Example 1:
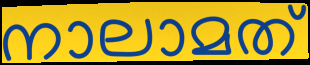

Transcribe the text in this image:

നാലാമത്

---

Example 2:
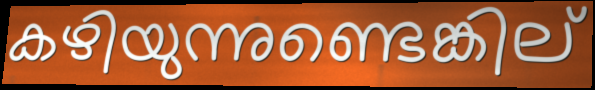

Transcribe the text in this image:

കഴിയുന്നുണ്ടെങ്കില്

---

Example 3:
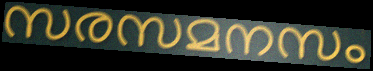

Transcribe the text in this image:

സരസമനസം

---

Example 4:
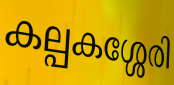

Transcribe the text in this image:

കല്പകശ്ശേരി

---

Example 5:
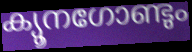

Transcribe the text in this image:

ക്യൂനഗോണ്ടും